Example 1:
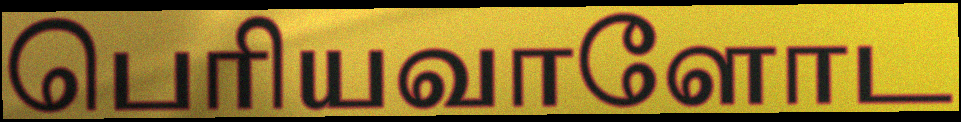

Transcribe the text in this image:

பெரியவாளோட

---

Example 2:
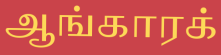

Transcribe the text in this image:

ஆங்காரக்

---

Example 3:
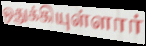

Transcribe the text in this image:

ஒதுக்கியுள்ளார்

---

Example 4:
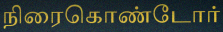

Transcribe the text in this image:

நிரைகொண்டோர்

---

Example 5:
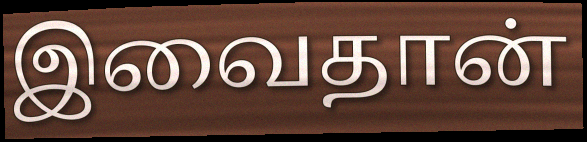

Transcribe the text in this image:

இவைதான்